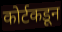
कोर्टकडून